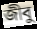
জীবু